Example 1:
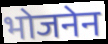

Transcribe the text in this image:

भोजनेन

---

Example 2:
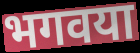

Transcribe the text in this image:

भगवया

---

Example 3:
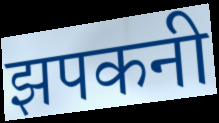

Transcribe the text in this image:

झपकनी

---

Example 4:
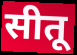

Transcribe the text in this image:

सीतू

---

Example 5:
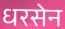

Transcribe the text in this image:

धरसेन